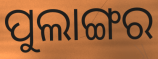
ପୁଲାଙ୍ଗର